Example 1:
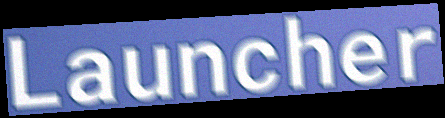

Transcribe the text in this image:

Launcher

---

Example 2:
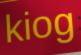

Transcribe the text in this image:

kiog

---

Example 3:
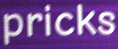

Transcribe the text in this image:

pricks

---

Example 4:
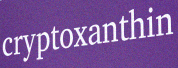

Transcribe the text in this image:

cryptoxanthin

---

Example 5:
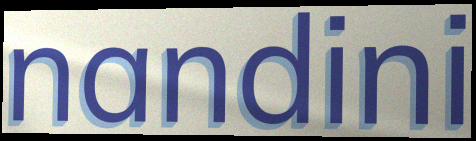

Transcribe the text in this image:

nandini